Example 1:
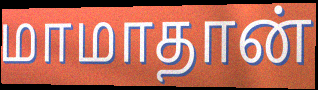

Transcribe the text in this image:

மாமாதான்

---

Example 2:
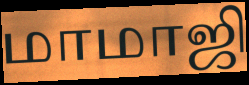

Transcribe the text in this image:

மாமாஜி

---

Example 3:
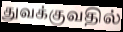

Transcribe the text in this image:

துவக்குவதில்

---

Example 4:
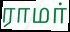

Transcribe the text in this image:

ராமர்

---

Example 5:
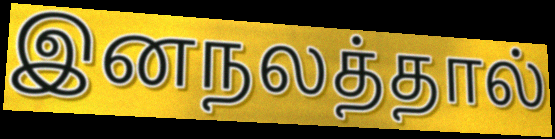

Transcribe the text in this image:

இனநலத்தால்